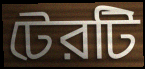
টেরটি